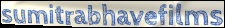
sumitrabhavefilms